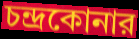
চন্দ্রকোনার